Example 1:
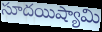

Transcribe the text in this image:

సూదయిష్యామి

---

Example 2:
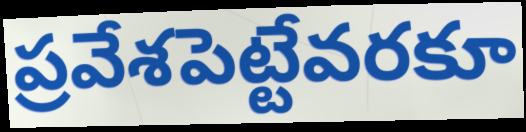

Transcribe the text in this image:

ప్రవేశపెట్టేవరకూ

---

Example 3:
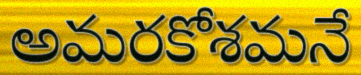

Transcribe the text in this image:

అమరకోశమనే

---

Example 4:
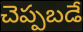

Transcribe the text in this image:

చెప్పబడే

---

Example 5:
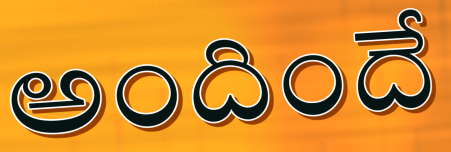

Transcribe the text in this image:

అందిందే